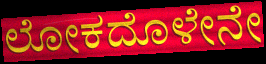
ಲೋಕದೊಳೇನೇ